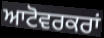
ਆਟੋਵਰਕਰਾਂ